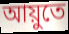
আয়ুতে